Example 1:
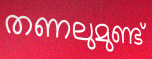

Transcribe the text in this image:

തണലുമുണ്ട്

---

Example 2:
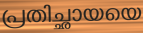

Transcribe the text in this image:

പ്രതിച്ഛായയെ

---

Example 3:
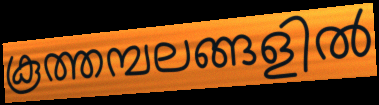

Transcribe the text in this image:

കൂത്തമ്പലങ്ങളിൽ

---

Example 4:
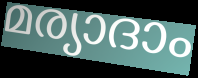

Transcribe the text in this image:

മര്യാദാം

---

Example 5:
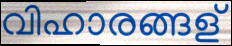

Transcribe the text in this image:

വിഹാരങ്ങള്